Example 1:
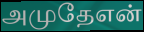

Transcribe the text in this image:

அமுதேஎன்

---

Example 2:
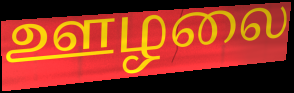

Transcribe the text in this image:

ஊழலை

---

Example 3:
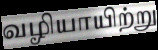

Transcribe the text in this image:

வழியாயிற்று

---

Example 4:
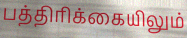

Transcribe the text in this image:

பத்திரிக்கையிலும்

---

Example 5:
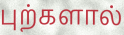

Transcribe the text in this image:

புற்களால்